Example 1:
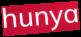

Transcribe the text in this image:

hunya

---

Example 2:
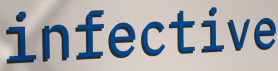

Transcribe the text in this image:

infective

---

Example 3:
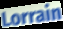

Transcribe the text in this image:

Lorrain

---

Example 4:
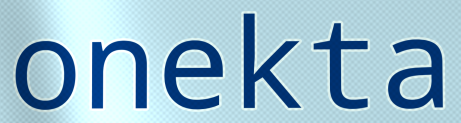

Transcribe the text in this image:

onekta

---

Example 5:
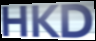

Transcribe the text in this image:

HKD